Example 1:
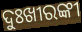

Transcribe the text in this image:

ଦୁଃଖୀରଙ୍କୀ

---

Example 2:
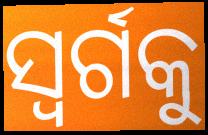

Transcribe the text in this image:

ସ୍ୱର୍ଗକୁ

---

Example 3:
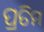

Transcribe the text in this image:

ପ୍ରତିମ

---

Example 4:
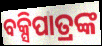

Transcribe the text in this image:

ବକ୍ସିପାତ୍ରଙ୍କ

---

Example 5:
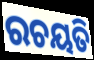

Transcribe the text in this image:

ରଚୟତି